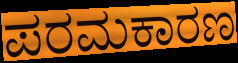
ಪರಮಕಾರಣ